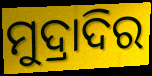
ମୁଦ୍ରାଦିର